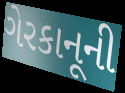
ગેરકાનૂની